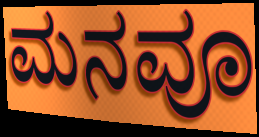
ಮನವೂ